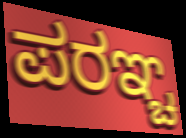
ಪರಞ್ಚ